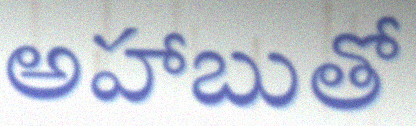
అహాబుతో